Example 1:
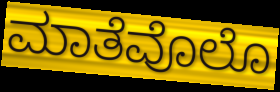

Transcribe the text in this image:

ಮಾತೆವೊಲೊ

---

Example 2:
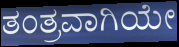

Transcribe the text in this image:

ತಂತ್ರವಾಗಿಯೇ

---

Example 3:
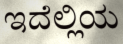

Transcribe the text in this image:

ಇದೆಲ್ಲಿಯ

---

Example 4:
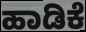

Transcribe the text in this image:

ಹಾಡಿಕೆ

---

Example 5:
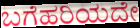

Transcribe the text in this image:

ಬಗೆಹರಿಯದೇ